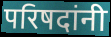
परिषदांनी